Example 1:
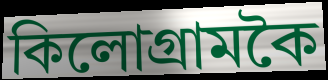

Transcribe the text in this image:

কিলোগ্ৰামকৈ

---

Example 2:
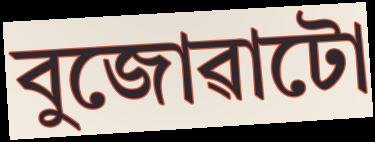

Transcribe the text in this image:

বুজোৱাটো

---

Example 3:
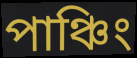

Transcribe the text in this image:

পাঞ্চিং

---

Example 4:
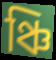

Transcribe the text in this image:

ঞ্চি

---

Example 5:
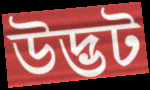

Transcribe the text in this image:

উদ্ভট